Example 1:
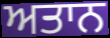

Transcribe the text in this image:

ਅਤਾਨ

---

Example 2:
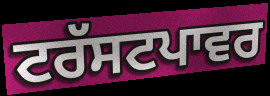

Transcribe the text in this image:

ਟਰੱਸਟਪਾਵਰ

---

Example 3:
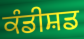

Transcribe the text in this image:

ਕੰਡੀਸ਼ਡ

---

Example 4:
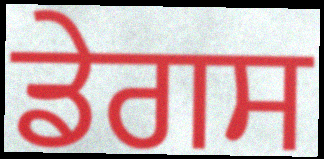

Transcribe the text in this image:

ਡੇਗਸ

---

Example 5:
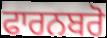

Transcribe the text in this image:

ਫਾਰਨਬਰੋ